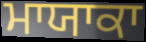
ਮਾਯਾਕਾ